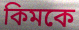
কিমকে